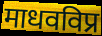
माधवविप्र